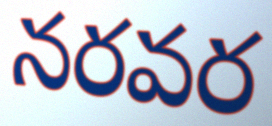
నరవర